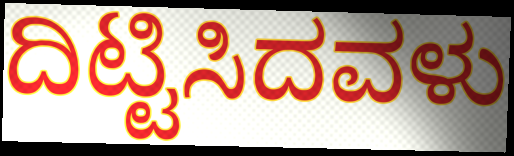
ದಿಟ್ಟಿಸಿದವಳು